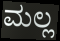
ಮಲ್ಲ